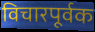
विचारपूर्वक